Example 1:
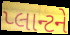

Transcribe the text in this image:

પ્લાન્ટને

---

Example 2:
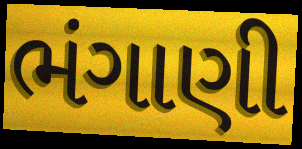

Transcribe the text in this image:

ભંગાણી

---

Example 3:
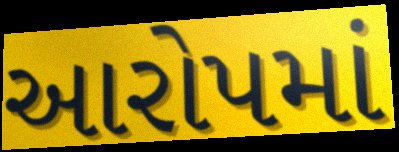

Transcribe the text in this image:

આરોપમાં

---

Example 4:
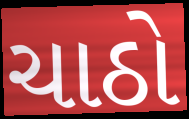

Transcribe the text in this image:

ચાઠો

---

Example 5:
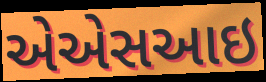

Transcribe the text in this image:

એએસઆઇ